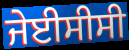
ਜੇਈਸੀਸੀ